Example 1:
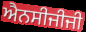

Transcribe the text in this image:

ਐਨਸੀਜੀਜੀ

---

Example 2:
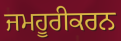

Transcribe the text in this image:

ਜਮਹੂਰੀਕਰਨ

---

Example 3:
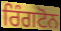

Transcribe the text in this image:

ਰਿੰਗਟੋਨ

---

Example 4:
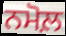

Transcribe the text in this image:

ਨਮੋਲ਼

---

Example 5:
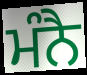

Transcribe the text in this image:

ਮੰਨੈ